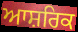
ਆਸ਼ਰਿਕ